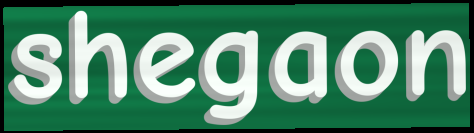
shegaon